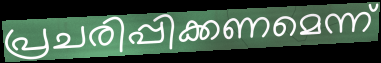
പ്രചരിപ്പിക്കണമെന്ന്